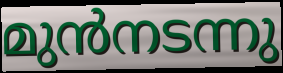
മുൻനടന്നു